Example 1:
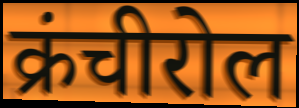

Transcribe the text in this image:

क्रंचीरोल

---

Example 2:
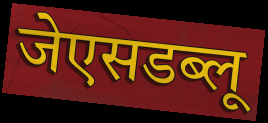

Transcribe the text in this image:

जेएसडब्‍लू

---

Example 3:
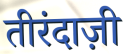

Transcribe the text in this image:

तीरंदाज़ी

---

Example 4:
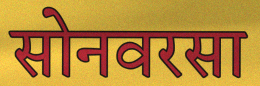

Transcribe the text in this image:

सोनवरसा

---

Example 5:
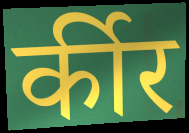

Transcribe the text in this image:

र्कीर